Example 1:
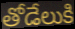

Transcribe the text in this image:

తోడేలుకి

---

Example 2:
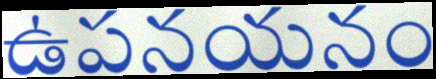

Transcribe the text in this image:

ఉపనయనం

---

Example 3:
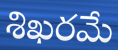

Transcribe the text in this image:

శిఖరమే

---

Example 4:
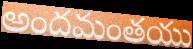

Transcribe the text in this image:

అందమంతయు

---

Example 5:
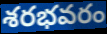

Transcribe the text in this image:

శరభవరం